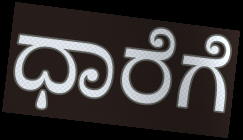
ಧಾರೆಗೆ